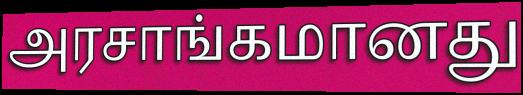
அரசாங்கமானது